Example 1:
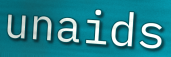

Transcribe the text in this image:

unaids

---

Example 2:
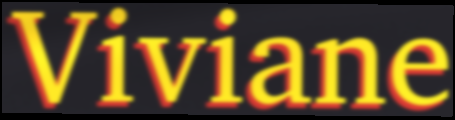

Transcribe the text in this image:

Viviane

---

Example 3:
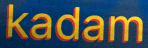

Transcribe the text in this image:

kadam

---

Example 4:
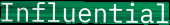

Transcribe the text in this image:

Influential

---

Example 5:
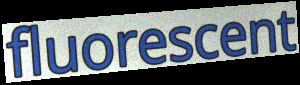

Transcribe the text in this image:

fluorescent